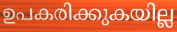
ഉപകരിക്കുകയില്ല